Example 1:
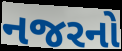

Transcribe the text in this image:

નજરનો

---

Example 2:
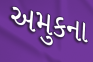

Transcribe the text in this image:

અમુકના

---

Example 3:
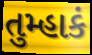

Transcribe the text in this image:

તુમ્હાકં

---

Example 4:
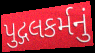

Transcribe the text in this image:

પુદ્ગલકર્મનું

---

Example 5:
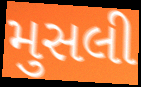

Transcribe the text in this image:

મુસલી